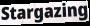
Stargazing